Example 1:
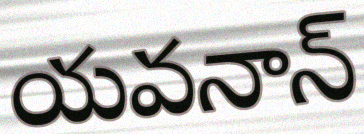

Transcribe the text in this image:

యవనాన్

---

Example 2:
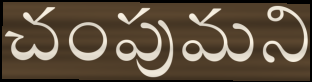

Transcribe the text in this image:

చంపుమని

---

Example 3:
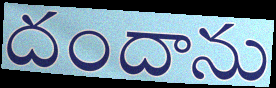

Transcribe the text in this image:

దందాను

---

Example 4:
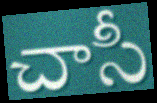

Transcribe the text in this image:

చాసీ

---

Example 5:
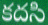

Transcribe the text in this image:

కదసి